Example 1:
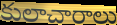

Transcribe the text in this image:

కులాచారాలు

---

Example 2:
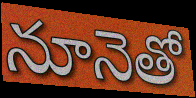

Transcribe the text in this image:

నూనెతో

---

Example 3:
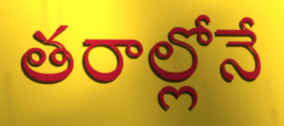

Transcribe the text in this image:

తరాల్లోనే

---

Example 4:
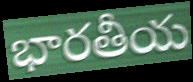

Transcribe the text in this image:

భారతీయ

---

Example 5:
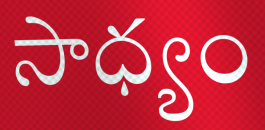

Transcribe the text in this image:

సాధ్యం